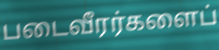
படைவீரர்களைப்